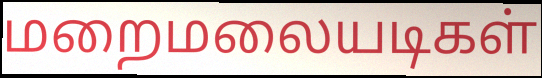
மறைமலையடிகள்